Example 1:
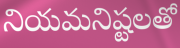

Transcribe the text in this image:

నియమనిష్టలతో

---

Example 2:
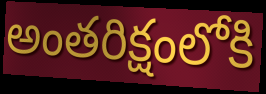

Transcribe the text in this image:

అంతరిక్షంలోకి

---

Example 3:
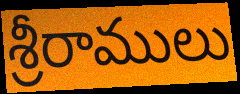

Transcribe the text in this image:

శ్రీరాములు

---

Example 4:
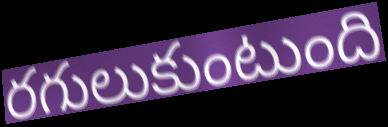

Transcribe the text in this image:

రగులుకుంటుంది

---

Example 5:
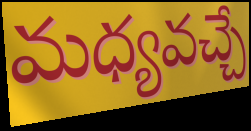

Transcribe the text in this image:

మధ్యవచ్చే